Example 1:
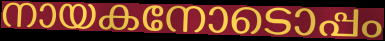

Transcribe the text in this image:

നായകനോടൊപ്പം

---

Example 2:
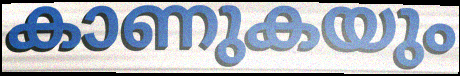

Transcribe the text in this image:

കാണുകയും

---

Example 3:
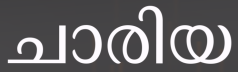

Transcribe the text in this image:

ചാരിയ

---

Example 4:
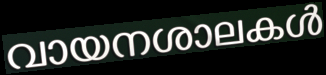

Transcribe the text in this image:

വായനശാലകൾ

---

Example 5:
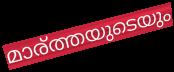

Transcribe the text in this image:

മാര്ത്തയുടെയും